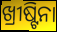
ଖ୍ରୀଷ୍ଟିନା